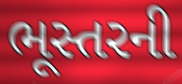
ભૂસ્તરની